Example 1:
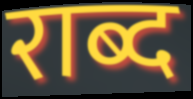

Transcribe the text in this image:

राब्द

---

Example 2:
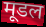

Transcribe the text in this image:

मूडल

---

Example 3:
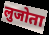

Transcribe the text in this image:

लुजोता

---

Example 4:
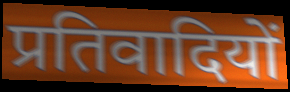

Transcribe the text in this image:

प्रतिवादियों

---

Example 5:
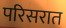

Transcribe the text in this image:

परिसरात